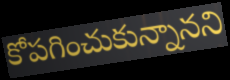
కోపగించుకున్నానని